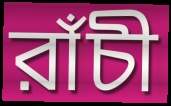
রাঁচী